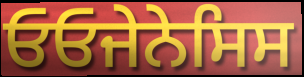
ਓਓਜੇਨੇਸਿਸ